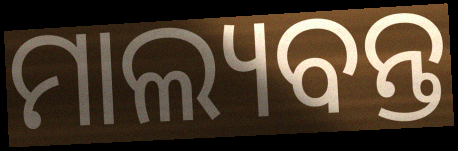
ମାଲ୍ୟବନ୍ତ